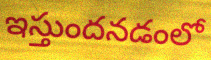
ఇస్తుందనడంలో